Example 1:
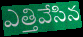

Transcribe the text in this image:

ఎత్తివేసిన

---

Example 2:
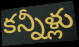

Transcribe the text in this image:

కన్నీళ్లు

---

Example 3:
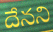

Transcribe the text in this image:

దేనని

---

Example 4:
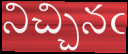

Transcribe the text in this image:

నిచ్చినఁ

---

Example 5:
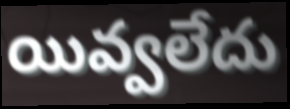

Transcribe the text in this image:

యివ్వలేదు